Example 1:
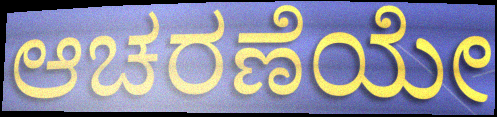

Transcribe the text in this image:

ಆಚರಣೆಯೇ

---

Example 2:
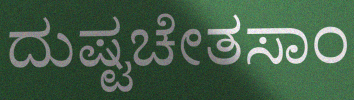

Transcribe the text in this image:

ದುಷ್ಟಚೇತಸಾಂ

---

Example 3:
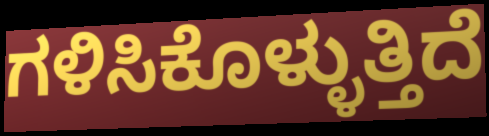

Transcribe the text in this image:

ಗಳಿಸಿಕೊಳ್ಳುತ್ತಿದೆ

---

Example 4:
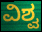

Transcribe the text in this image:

ವಿಶ್ವ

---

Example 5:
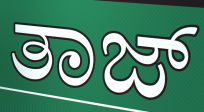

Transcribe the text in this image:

ತಾಜ್